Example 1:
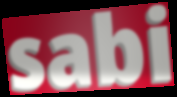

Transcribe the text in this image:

sabi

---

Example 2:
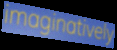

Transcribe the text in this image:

imaginatively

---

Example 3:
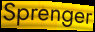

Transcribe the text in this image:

Sprenger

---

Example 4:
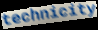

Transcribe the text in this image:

technicity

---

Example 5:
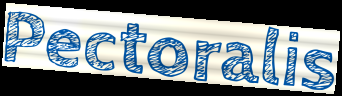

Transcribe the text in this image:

Pectoralis